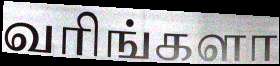
வரிங்களா